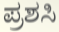
ಪ್ರಶಸಿ